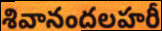
శివానందలహరీ